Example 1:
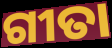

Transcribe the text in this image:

ଗୀତା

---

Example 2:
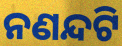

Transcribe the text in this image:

ନଣନ୍ଦଟି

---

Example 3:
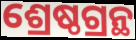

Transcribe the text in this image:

ଶ୍ରେଷ୍ଠଗ୍ରନ୍ଥ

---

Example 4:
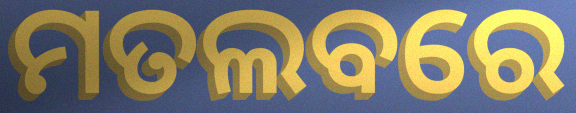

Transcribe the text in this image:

ମତଲବରେ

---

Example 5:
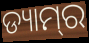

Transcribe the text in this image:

ଡ୍ୟାମ୍‍ର